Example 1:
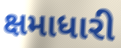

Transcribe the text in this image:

ક્ષમાધારી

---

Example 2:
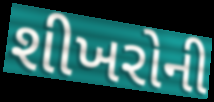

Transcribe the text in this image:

શીખરોની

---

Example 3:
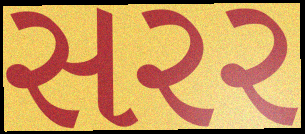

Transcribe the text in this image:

સરર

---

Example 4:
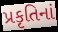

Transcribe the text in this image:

પ્રકૃતિનાં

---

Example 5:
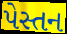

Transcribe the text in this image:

પેસ્તન